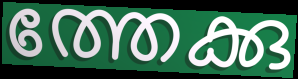
ത്തേക്കു